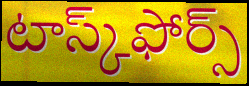
టాస్క్‌ఫోర్స్